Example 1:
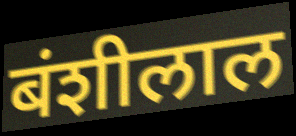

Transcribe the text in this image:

बंशीलाल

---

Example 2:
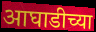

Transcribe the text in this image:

आघाडीच्‍या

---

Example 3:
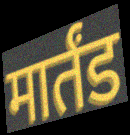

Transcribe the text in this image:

मार्तंड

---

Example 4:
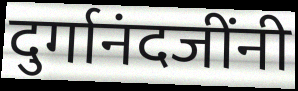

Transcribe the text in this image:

दुर्गानंदजींनी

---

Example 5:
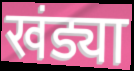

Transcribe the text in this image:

खंड्या